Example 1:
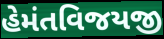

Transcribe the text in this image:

હેમંતવિજયજી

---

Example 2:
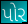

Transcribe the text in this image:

પોર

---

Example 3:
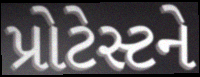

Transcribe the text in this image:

પ્રોટેસ્ટને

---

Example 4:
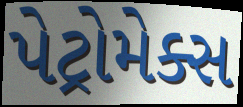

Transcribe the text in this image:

પેટ્રોમેક્સ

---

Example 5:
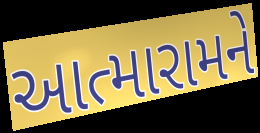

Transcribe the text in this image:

આત્મારામને